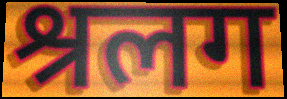
श्रलग